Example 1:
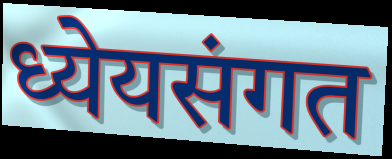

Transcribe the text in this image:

ध्येयसंगत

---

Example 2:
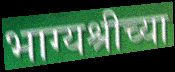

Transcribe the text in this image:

भाग्यश्रीच्या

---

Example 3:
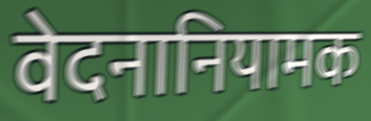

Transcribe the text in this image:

वेदनानियामक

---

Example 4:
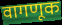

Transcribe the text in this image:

वागणूक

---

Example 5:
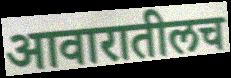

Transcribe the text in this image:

आवारातीलच